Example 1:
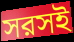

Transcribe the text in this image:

সরসই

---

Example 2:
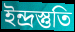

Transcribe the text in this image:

ইন্দ্রস্তুতি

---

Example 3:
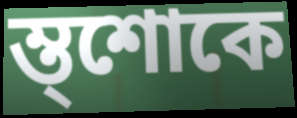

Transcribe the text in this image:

ম্ত্শোকে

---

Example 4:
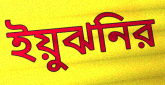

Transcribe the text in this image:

ইয়ুঝনির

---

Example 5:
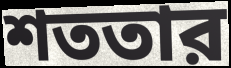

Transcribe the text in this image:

শততার